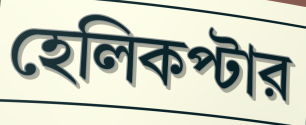
হেলিকপ্টার